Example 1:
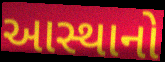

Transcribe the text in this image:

આસ્થાનો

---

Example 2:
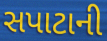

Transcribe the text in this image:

સપાટાની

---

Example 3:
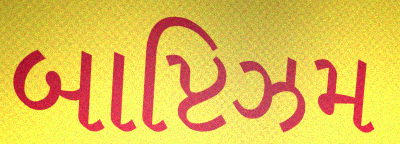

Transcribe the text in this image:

બાપ્ટિઝમ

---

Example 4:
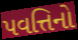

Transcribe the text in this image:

પવત્તિનો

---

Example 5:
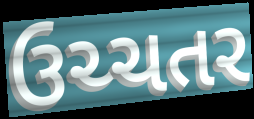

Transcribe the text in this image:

ઉચ્ચતર